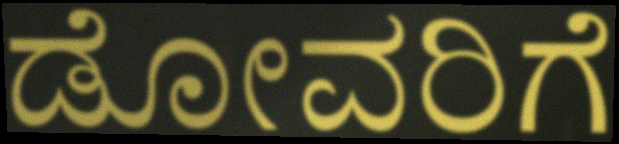
ಡೋವರಿಗೆ